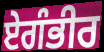
ਏਗੰਭੀਰ